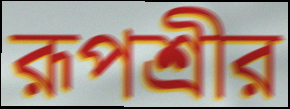
রূপশ্রীর